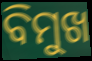
ବିମୁଖ